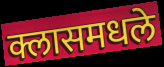
क्लासमधले